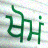
ਖੋਮਂ